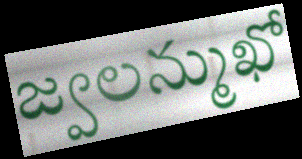
జ్వలన్ముఖో